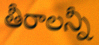
తీరాలన్నీ